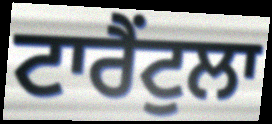
ਟਾਰੈਂਟੁਲਾ